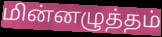
மின்னழுத்தம்